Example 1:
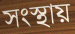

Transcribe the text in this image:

সংস্থায়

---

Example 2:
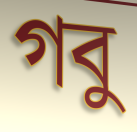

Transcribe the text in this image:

গবু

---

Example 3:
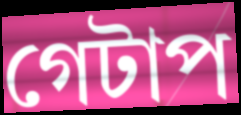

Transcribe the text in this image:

গেটাপ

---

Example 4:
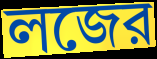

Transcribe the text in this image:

লজের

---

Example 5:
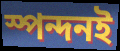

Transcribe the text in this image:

স্পন্দনই